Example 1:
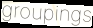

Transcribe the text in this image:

groupings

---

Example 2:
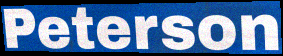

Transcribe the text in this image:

Peterson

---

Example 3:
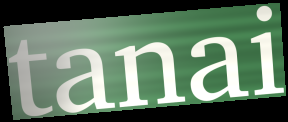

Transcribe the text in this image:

tanai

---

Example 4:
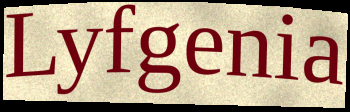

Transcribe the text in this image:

Lyfgenia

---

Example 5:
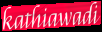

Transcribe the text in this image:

kathiawadi